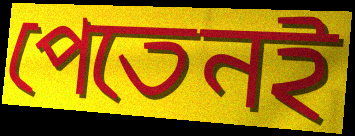
পেতেনই